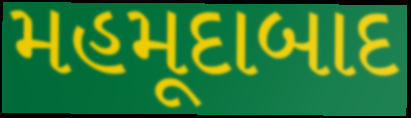
મહમૂદાબાદ